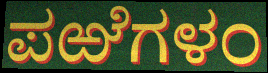
ಪಱೆಗಳಂ